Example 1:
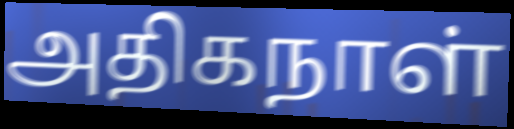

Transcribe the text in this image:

அதிகநாள்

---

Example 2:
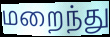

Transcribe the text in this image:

மறைந்து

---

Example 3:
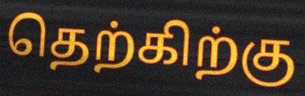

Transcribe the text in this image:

தெற்கிற்கு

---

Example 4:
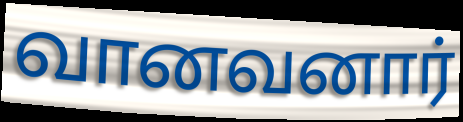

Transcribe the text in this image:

வானவனார்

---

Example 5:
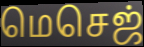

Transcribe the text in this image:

மெசெஜ்